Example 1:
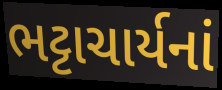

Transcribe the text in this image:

ભટ્ટાચાર્યનાં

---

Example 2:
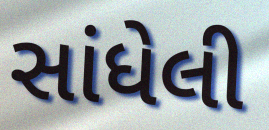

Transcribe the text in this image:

સાંધેલી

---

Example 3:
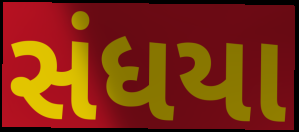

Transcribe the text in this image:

સંધયા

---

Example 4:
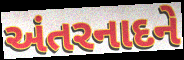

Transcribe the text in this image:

અંતરનાદને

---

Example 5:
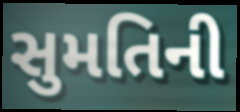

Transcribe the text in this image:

સુમતિની